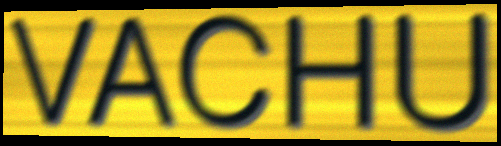
VACHU